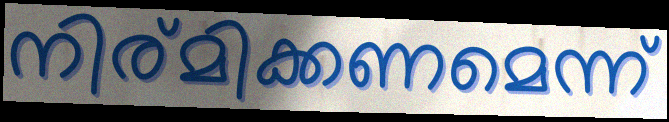
നിര്മിക്കണമെന്ന്